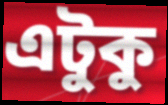
এটুকু